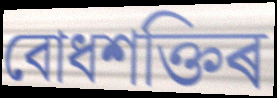
বোধশক্তিৰ